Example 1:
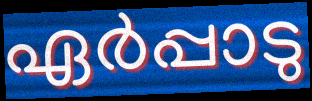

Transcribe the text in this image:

ഏർപ്പാടു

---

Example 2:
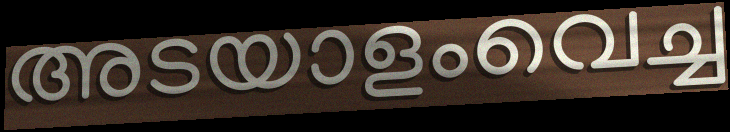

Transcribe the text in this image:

അടയാളംവെച്ച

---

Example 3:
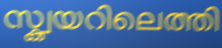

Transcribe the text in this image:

സ്ക്വയറിലെത്തി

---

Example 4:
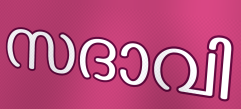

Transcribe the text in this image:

സദാവി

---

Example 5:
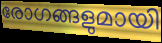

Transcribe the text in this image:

രോഗങ്ങളുമായി